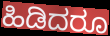
ಹಿಡಿದರೂ